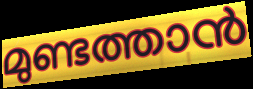
മുണ്ടത്താൻ